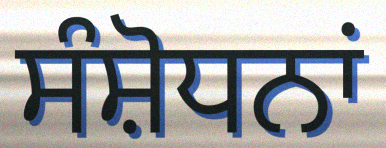
ਸੰਸ਼ੋਧਨਾਂ